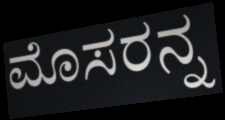
ಮೊಸರನ್ನ